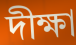
দীক্ষা